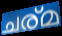
ചര്മ